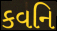
કવનિ